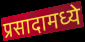
प्रसादामध्ये